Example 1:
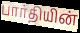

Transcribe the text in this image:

பார்தியின்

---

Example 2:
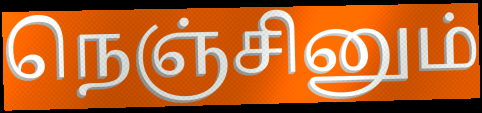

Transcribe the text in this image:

நெஞ்சினும்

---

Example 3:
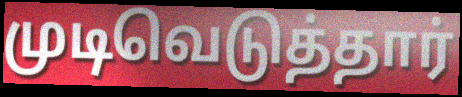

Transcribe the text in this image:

முடிவெடுத்தார்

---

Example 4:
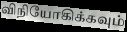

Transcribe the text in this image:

விநியோகிக்கவும்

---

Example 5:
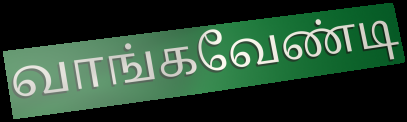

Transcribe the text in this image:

வாங்கவேண்டி